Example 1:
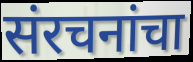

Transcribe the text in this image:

संरचनांचा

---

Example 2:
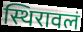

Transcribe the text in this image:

स्थिरावलं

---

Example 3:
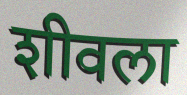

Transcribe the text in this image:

शीवला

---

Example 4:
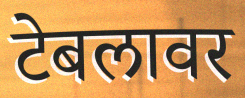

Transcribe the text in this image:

टेबलावर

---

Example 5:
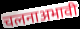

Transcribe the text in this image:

चलनाअभावी